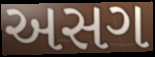
અસગ